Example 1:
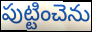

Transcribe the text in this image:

పుట్టించెను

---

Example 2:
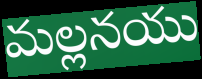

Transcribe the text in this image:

మల్లనయు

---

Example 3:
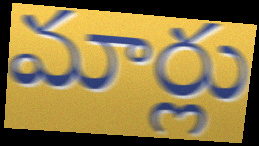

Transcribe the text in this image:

మార్లు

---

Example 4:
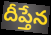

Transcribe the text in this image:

దీప్తేన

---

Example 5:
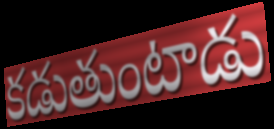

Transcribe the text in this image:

కడుతుంటాడు